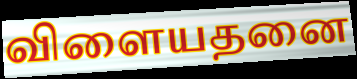
விளையதனை